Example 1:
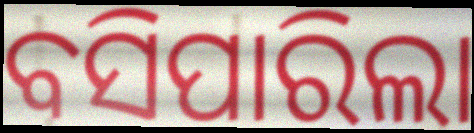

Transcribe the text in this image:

ବସିପାରିଲା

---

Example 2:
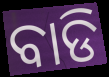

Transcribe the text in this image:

ବାଡି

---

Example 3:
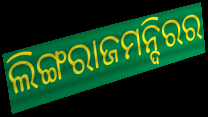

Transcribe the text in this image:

ଲିଙ୍ଗରାଜମନ୍ଦିରର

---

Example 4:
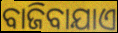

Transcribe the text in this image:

ବାଜିବାଯାଏ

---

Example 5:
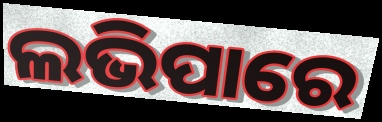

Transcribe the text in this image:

ଲଭିପାରେ